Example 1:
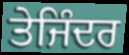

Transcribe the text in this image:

ਤੇਜਿੰਦਰ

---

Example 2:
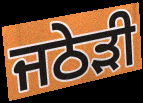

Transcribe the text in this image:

ਜਠੇੜੀ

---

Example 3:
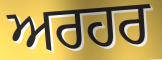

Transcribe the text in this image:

ਅਰਹਰ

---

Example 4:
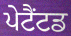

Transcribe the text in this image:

ਪੇਟੈਂਟਡ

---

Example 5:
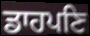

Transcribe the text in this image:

ਡਾਹਪਣਿ